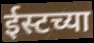
ईस्टच्या